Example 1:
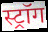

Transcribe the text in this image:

स्ट्रॉग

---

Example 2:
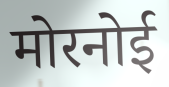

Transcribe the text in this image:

मोरनोई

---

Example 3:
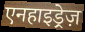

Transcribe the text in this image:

एनहाइड्रेज़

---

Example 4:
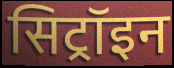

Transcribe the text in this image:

सिट्रॉइन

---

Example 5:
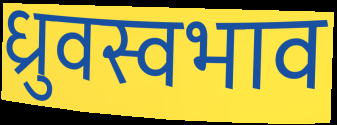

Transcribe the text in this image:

ध्रुवस्वभाव